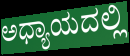
ಅಧ್ಯಾಯದಲ್ಲಿ